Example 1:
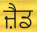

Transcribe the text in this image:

ਜ਼ੈਡ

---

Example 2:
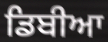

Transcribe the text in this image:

ਡਿਬੀਆ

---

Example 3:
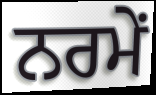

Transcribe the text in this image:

ਨਰਮੇਂ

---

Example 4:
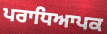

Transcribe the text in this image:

ਪਰਾਧਿਆਪਕ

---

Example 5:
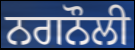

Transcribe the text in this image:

ਨਗਨੌਲੀ